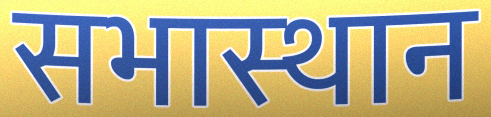
सभास्थान